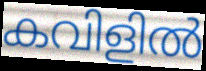
കവിളിൽ